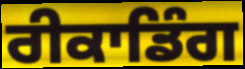
ਰੀਕਾਡਿੰਗ